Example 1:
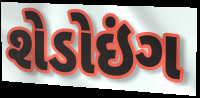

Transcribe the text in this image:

શેડોઇંગ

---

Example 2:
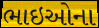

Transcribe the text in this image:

ભાઇઓના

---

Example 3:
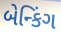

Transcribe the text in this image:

બેન્કિંગ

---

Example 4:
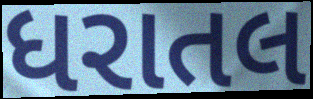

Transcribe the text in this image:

ધરાતલ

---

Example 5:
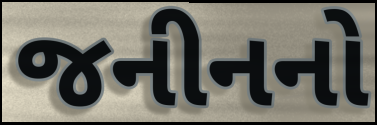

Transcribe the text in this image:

જનીનનો